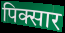
पिक्सार